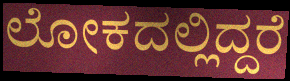
ಲೋಕದಲ್ಲಿದ್ದರೆ